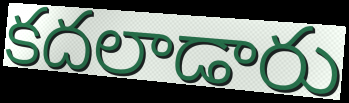
కదలాడారు